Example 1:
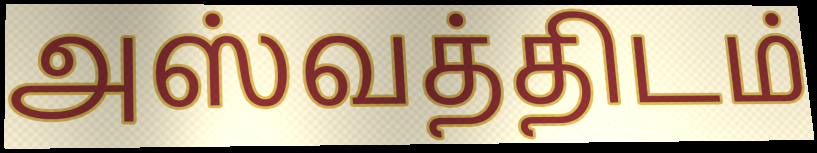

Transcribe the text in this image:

அஸ்வத்திடம்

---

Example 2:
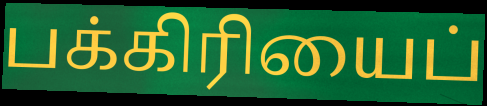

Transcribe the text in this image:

பக்கிரியைப்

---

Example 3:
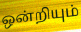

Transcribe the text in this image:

ஒன்றியும்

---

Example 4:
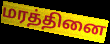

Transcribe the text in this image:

மரத்தினை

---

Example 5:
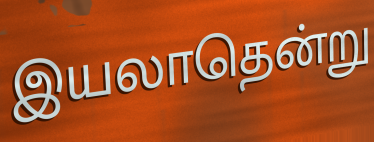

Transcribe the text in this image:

இயலாதென்று